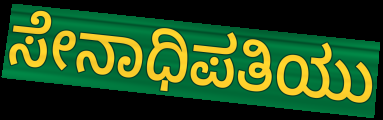
ಸೇನಾಧಿಪತಿಯು